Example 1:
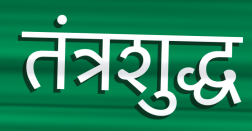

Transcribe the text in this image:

तंत्रशुद्ध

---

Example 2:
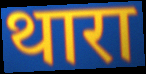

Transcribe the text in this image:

थारा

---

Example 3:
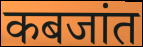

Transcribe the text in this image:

कबजांत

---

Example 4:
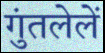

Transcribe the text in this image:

गुंतलेलें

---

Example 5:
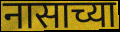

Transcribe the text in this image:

नासाच्या